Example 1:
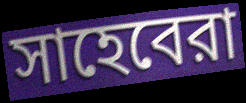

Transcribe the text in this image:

সাহেবেরা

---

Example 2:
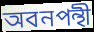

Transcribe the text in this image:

অবনপন্থী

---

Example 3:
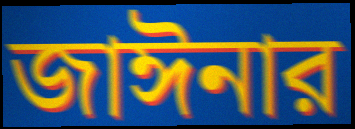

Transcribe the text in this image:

জাঈনার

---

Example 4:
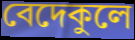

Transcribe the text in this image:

বেদেকুলে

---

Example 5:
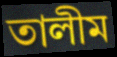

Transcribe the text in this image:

তালীম